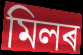
মিলৰ